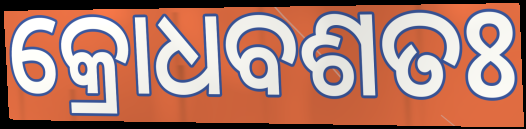
କ୍ରୋଧବଶତଃ